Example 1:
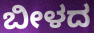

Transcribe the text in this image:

ಬೀಳದ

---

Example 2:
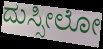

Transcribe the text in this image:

ದುಸ್ಸೀಲೋ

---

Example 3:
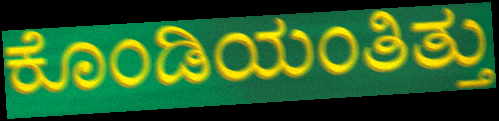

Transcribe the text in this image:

ಕೊಂಡಿಯಂತಿತ್ತು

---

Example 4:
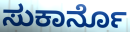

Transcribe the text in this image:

ಸುಕಾರ್ನೊ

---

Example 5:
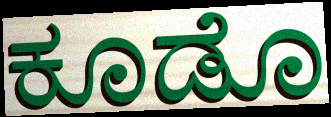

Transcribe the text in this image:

ಕೂಡೊ